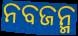
ନବଜନ୍ମ